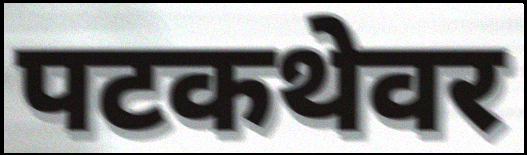
पटकथेवर